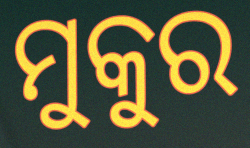
ମୁକୁର